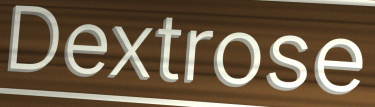
Dextrose